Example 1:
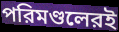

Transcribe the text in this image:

পরিমণ্ডলেরই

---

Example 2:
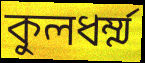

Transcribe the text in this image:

কুলধর্ম্ম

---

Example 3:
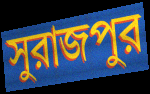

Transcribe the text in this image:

সুরাজপুর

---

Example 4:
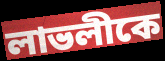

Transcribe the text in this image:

লাভলীকে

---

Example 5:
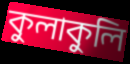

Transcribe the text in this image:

কুলাকুলি